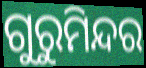
ଗୁରୁମିନ୍ଦର